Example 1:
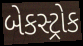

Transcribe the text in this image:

બેકસ્ટ્રોક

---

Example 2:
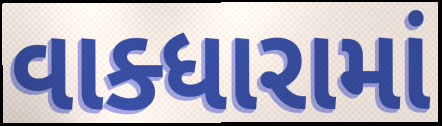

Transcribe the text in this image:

વાક્ધારામાં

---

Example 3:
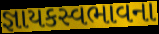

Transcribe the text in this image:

જ્ઞાયકસ્વભાવના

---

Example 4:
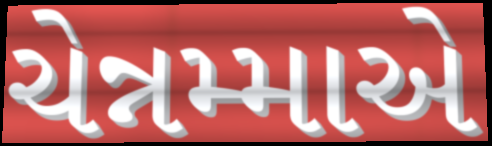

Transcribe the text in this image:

ચેન્નમ્માએ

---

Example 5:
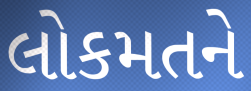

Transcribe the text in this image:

લોકમતને